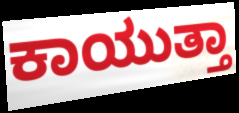
ಕಾಯುತ್ತಾ